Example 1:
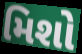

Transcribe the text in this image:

મિશો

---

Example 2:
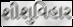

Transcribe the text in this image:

શીશુવિહાર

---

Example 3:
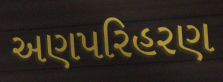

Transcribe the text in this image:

અણપરિહરણ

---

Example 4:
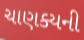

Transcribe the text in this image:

ચાણક્યની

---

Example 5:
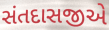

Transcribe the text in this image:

સંતદાસજીએ